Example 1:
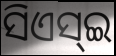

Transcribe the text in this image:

ସିଏସ୍ଇ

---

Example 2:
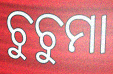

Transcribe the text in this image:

ଚୁଚୁମା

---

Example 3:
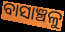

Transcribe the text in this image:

ବାସାଞ୍ଚଳୁ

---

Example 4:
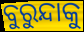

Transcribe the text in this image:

ବୁରୁନ୍ଦାକୁ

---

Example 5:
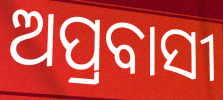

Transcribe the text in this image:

ଅପ୍ରବାସୀ